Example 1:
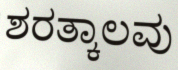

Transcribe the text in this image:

ಶರತ್ಕಾಲವು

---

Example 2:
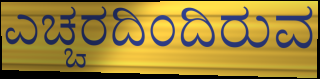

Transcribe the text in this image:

ಎಚ್ಚರದಿಂದಿರುವ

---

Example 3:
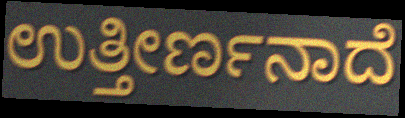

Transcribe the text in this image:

ಉತ್ತೀರ್ಣನಾದೆ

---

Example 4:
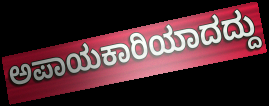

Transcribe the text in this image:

ಅಪಾಯಕಾರಿಯಾದದ್ದು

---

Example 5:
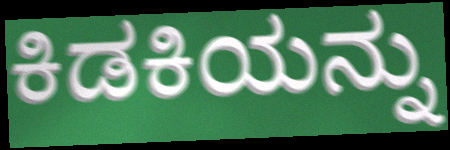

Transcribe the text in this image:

ಕಿಡಕಿಯನ್ನು